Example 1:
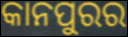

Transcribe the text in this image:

କାନପୁରର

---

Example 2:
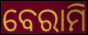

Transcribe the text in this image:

ବେରାମି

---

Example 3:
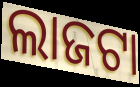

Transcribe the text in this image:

ଲାଜଟା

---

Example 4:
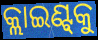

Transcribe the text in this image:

କ୍ଲାଇଣ୍ଟ୍‌କୁ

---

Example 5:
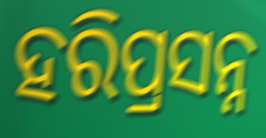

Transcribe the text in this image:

ହରିପ୍ରସନ୍ନ